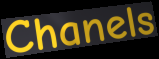
Chanels